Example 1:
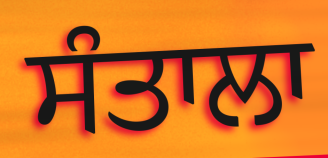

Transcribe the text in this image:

ਸੰਤਾਲਾ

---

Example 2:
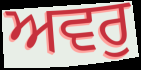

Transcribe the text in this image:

ਅਵਰੁ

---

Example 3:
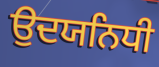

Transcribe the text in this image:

ਉਦਯਨਿਧੀ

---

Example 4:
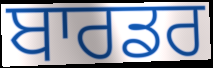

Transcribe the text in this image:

ਬਾਰਡਰ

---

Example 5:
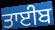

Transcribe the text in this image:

ਤਾਈਬ